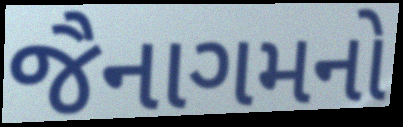
જૈનાગમનો